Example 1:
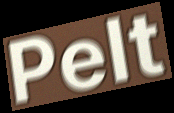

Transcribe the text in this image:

Pelt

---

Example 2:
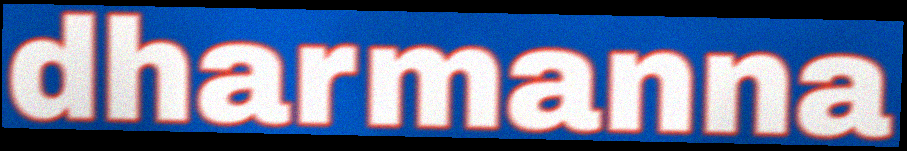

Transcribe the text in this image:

dharmanna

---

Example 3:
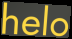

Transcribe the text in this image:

helo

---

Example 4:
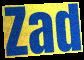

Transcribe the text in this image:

Zad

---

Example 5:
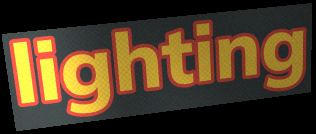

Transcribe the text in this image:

lighting